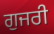
ਗੁਜਰੀ